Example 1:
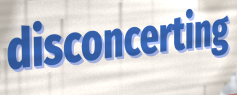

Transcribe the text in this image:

disconcerting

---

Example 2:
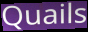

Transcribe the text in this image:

Quails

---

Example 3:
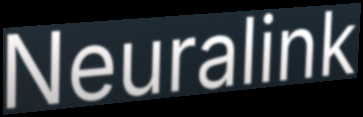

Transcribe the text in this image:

Neuralink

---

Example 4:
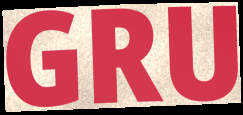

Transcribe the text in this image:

GRU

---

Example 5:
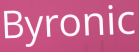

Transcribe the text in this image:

Byronic